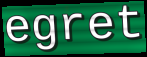
egret